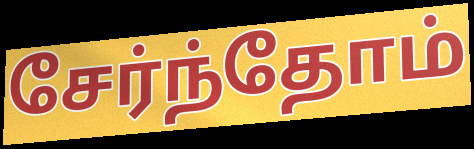
சேர்ந்தோம்